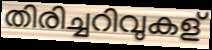
തിരിച്ചറിവുകള്